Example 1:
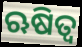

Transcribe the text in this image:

ଋଷିତ୍ୱ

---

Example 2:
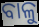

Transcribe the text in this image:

ବାଳୁ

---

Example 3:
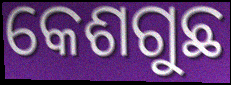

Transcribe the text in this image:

କେଶଗୁଛ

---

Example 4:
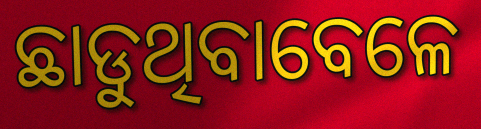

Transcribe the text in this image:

ଛାଡୁଥିବାବେଳେ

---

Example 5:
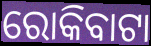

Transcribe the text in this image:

ରୋକିବାଟା